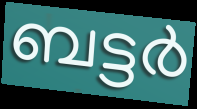
ബട്ടർ